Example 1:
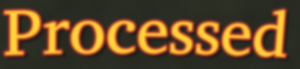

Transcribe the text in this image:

Processed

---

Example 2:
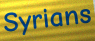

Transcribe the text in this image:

Syrians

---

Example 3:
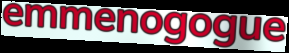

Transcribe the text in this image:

emmenogogue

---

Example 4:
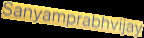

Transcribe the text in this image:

Sanyamprabhvijay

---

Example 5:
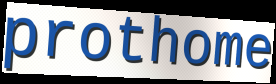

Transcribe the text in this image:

prothome